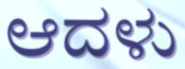
ಆದಳು